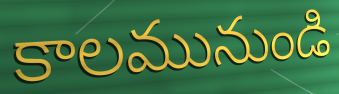
కాలమునుండి